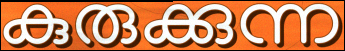
കുരുക്കുന്ന